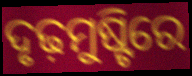
ଦୃଢ଼ମୁଷ୍ଟିରେ